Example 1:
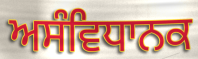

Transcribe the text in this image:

ਅਸੰਵਿਧਾਨਕ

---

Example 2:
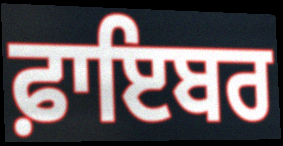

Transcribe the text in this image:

ਫ਼ਾਇਬਰ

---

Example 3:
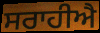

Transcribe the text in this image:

ਸਰਾਹੀਐ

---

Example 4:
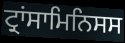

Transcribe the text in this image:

ਟ੍ਰਾਂਸਾਮਿਨਿਸਸ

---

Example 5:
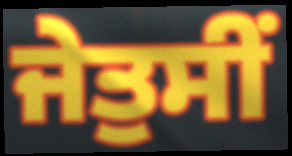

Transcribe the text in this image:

ਜੇਤੁਸੀਂ